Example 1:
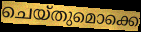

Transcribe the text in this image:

ചെയ്തുമൊക്കെ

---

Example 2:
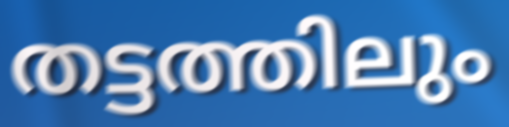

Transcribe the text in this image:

തട്ടത്തിലും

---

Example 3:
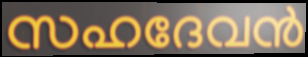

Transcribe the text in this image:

സഹദേവൻ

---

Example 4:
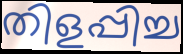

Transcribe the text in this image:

തിളപ്പിച്ച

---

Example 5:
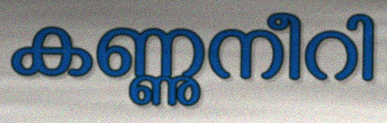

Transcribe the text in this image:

കണ്ണുനീറി